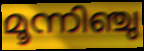
മൂന്നിഞ്ചു